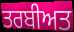
ਤਰਬੀਅਤ